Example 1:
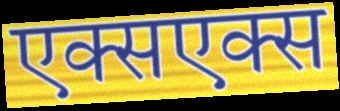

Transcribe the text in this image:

एक्सएक्स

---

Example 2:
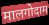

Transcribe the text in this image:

मालगोदाम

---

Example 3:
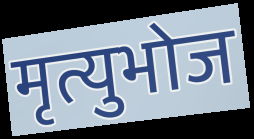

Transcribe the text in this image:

मृत्युभोज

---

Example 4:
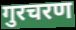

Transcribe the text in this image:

गुरचरण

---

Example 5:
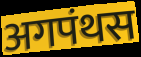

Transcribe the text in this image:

अगपंथस